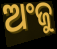
ଅଂଜୁ